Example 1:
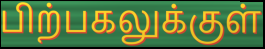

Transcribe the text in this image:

பிற்பகலுக்குள்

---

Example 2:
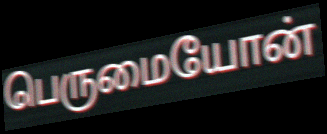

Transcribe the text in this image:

பெருமையோன்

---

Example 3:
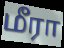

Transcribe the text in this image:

மீரா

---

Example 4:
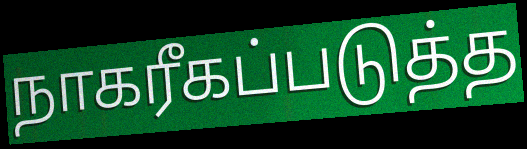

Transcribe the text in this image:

நாகரீகப்படுத்த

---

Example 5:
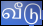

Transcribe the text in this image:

வீடு